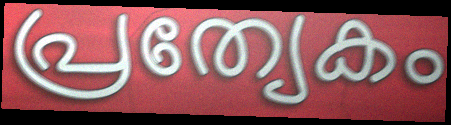
പ്രത്യേകം